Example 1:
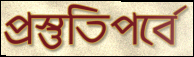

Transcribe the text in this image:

প্রস্তুতিপর্বে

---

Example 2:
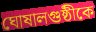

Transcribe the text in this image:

ঘোষালগুষ্ঠীকে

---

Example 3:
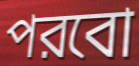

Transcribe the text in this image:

পরবো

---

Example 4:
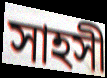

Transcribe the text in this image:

সাহসী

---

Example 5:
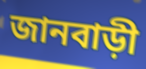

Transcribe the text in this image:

জানবাড়ী